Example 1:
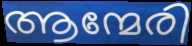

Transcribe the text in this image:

ആന്മേരി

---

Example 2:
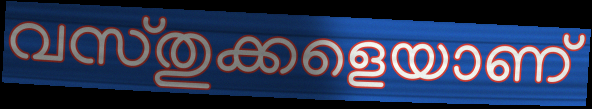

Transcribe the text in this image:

വസ്തുക്കളെയാണ്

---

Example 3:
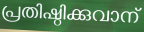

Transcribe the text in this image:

പ്രതിഷ്ഠിക്കുവാന്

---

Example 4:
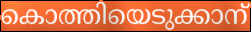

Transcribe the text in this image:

കൊത്തിയെടുക്കാന്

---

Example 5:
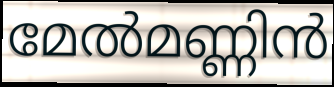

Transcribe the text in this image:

മേൽമണ്ണിൻ